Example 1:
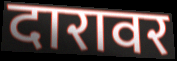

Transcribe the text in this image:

दारावर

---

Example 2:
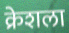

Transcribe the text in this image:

क्रेशला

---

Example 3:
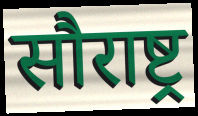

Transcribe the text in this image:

सौराष्ट्र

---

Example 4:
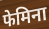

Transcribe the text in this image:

फेमिना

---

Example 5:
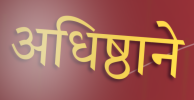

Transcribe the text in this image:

अधिष्ठाने